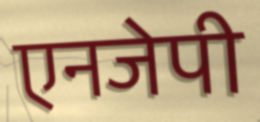
एनजेपी